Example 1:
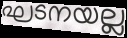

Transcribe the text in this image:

ഘടനയല്ല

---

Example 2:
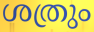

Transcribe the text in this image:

ശത്രും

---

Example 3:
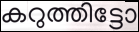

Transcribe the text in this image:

കറുത്തിട്ടോ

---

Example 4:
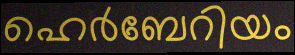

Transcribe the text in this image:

ഹെർബേറിയം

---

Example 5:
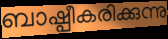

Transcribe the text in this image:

ബാഷ്പീകരിക്കുന്നു